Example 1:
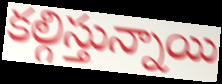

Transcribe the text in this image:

కల్గిస్తున్నాయి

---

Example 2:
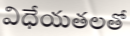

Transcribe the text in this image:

విధేయతలతో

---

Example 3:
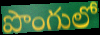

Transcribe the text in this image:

పొంగులో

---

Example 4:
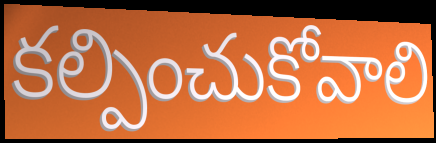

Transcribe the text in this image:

కల్పించుకోవాలి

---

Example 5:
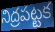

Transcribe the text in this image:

నిద్రపట్టక